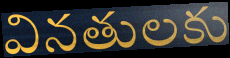
వినతులకు